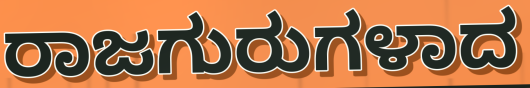
ರಾಜಗುರುಗಳಾದ